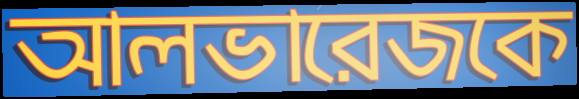
আলভারেজকে